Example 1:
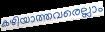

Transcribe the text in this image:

കഴിയാത്തവരെല്ലാം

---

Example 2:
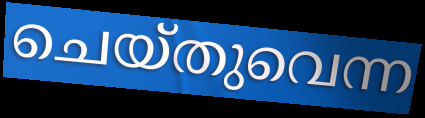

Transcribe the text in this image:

ചെയ്തുവെന്ന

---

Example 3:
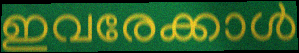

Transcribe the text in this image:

ഇവരേക്കാൾ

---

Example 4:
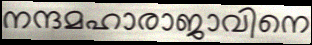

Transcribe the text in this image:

നന്ദമഹാരാജാവിനെ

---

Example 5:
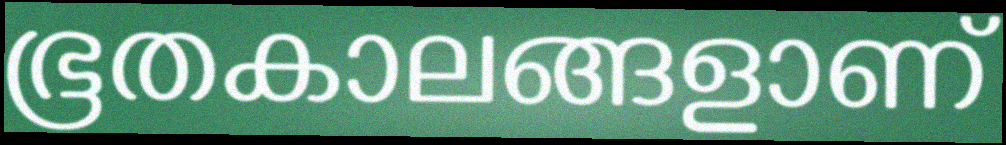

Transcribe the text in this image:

ഭൂതകാലങ്ങളാണ്